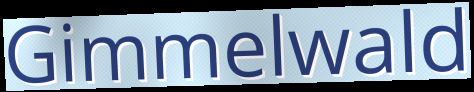
Gimmelwald